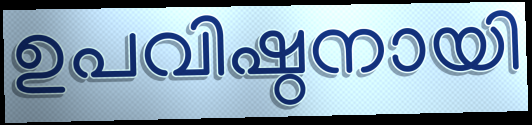
ഉപവിഷ്ഠനായി